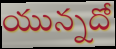
యున్నదో